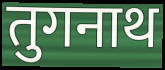
तुगनाथ